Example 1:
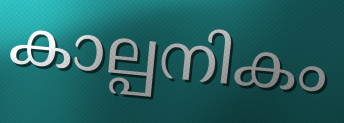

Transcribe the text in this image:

കാല്പനികം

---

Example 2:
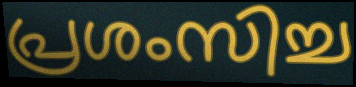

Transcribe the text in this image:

പ്രശംസിച്ച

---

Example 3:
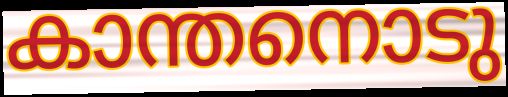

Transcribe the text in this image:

കാന്തനൊടു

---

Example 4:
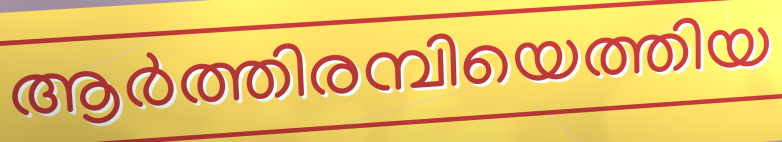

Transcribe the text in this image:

ആർത്തിരമ്പിയെത്തിയ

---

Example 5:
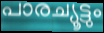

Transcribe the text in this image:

പാരച്യൂട്ടും